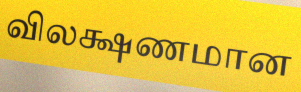
விலக்ஷணமான